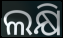
ଲକ୍ଷି